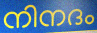
നിനദം